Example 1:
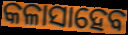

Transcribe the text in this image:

କଳାସାହେବ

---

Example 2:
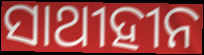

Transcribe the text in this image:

ସାଥୀହୀନ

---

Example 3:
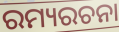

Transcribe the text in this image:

ରମ୍ୟରଚନା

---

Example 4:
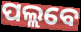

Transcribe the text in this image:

ପଲ୍ଲବେ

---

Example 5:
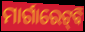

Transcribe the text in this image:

ମାର୍ଗାରେଟ୍‌ବି